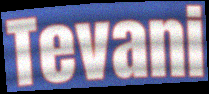
Tevani